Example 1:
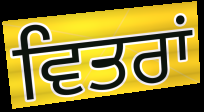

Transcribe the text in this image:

ਵਿਤਰਾਂ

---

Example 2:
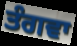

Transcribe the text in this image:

ਤੰਗਵਾ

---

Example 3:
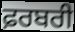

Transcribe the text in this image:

ਫ਼ਰਬਰੀ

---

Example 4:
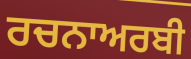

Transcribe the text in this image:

ਰਚਨਾਅਰਬੀ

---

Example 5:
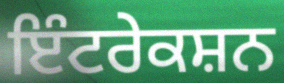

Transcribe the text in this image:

ਇੰਟਰੇਕਸ਼ਨ